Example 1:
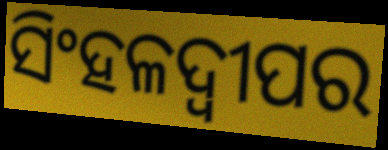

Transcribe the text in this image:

ସିଂହଳଦ୍ୱୀପର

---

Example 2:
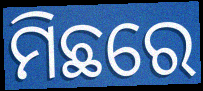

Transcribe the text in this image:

ମିଛରେ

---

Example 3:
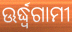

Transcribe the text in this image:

ଊର୍ଦ୍ଧ୍ଵଗାମୀ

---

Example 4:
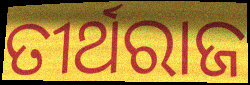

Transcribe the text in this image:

ତୀର୍ଥରାଜ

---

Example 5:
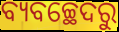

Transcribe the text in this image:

ବ୍ୟବଚ୍ଛେଦରୁ